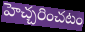
హెచ్చరించటం